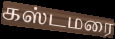
கஸ்டமரை